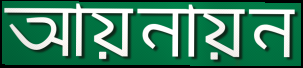
আয়নায়ন